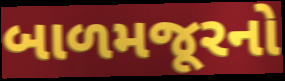
બાળમજૂરનો